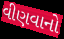
વીણવાનો